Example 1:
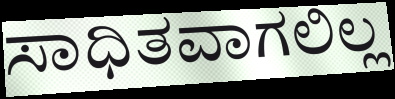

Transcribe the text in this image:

ಸಾಧಿತವಾಗಲಿಲ್ಲ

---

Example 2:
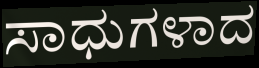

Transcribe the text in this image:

ಸಾಧುಗಳಾದ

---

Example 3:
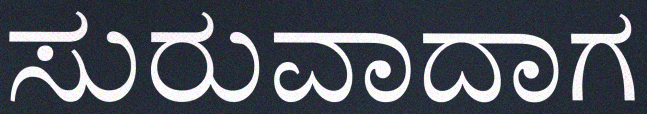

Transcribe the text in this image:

ಸುರುವಾದಾಗ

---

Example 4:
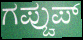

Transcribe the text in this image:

ಗಪ್ಚುಪ್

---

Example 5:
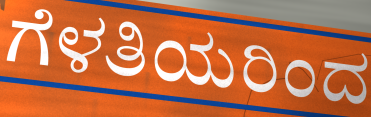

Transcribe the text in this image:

ಗೆಳತಿಯರಿಂದ